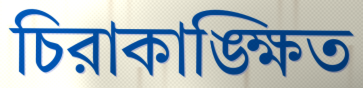
চিরাকাঙ্ক্ষিত